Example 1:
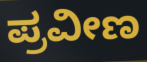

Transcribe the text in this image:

ಪ್ರವೀಣ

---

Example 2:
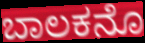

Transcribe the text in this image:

ಬಾಲಕನೊ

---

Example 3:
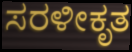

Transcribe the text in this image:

ಸರಳೀಕೃತ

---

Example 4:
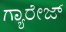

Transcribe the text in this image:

ಗ್ಯಾರೇಜ್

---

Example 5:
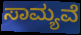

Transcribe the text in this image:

ಸಾಮ್ಯವೆ